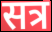
सत्र